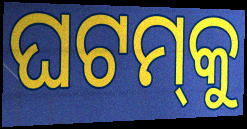
ଘଟମ୍‌କୁ